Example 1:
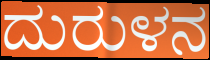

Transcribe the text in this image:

ದುರುಳನ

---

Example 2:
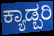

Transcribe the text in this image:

ಕ್ಯಾಡ್ಬರಿ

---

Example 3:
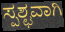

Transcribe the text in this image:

ಸ್ಪಶ್ಟವಾಗಿ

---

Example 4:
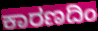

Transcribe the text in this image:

ಕಾರಣದಿಂ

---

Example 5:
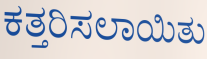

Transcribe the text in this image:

ಕತ್ತರಿಸಲಾಯಿತು